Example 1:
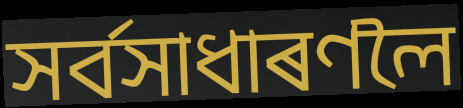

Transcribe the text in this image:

সৰ্বসাধাৰণলৈ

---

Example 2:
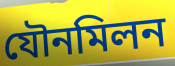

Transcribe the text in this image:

যৌনমিলন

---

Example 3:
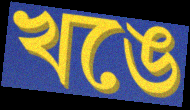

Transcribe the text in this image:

খঙে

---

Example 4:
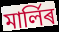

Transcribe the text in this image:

মাৰ্লিৰ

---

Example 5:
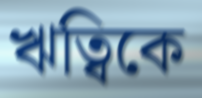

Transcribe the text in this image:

ঋত্বিকে